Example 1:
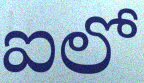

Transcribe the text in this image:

ఐలో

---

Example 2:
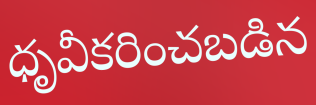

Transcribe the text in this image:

ధృవీకరించబడిన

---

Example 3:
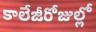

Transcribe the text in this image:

కాలేజీరోజుల్లో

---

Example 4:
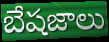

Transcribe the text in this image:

బేషజాలు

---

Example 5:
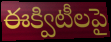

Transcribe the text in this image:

ఈక్విటీలపై